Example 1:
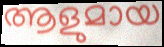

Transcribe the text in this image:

ആളുമായ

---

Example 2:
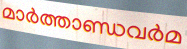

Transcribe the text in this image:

മാർത്താണ്ഡവർമ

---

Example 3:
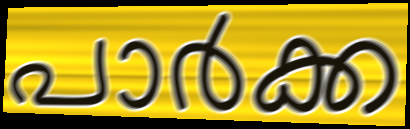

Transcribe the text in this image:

പാർക്ക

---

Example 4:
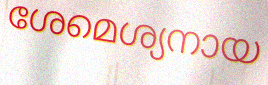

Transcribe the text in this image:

ശേമെശ്യനായ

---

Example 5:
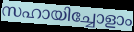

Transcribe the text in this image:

സഹായിച്ചോളാം